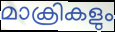
മാക്രികളും